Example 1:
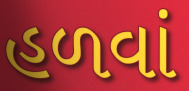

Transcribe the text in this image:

હળવાં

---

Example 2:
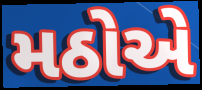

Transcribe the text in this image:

મઠોએ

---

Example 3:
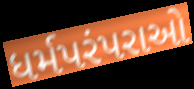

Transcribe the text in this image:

ધર્મપરંપરાઓ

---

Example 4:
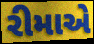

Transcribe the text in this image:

રીમાએ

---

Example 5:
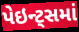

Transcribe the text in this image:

પેઇન્ટ્સમાં